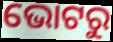
ଭୋଟରୁ